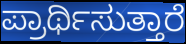
ಪ್ರಾರ್ಥಿಸುತ್ತಾರೆ